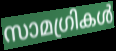
സാമഗ്രികൾ